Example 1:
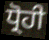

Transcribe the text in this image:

ਧ੍ਰੋਹੀ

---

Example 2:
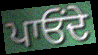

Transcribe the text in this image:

ਪਾਓਂਦੇ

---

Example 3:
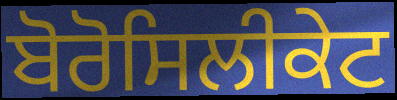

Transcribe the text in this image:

ਬੋਰੋਸਿਲੀਕੇਟ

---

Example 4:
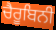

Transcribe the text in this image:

ਚੈਰੂਬਿਨੀ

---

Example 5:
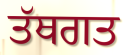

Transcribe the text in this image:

ਤੱਥਗਤ